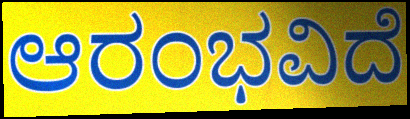
ಆರಂಭವಿದೆ